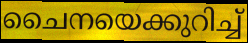
ചൈനയെക്കുറിച്ച്